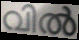
വിൽ